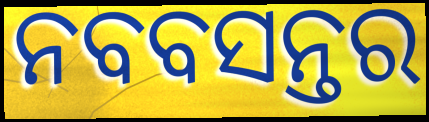
ନବବସନ୍ତର